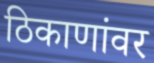
ठिकाणांवर